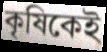
কৃষিকেই